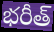
భరీత్